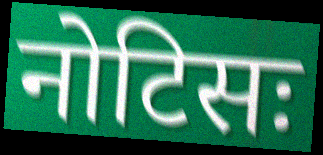
नोटिसः